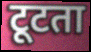
टूटता